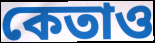
কেতাও